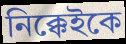
নিক্কেইকে